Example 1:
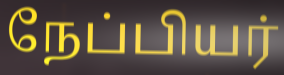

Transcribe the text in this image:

நேப்பியர்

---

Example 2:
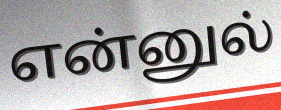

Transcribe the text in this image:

என்னுல்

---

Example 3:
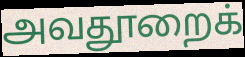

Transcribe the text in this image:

அவதூறைக்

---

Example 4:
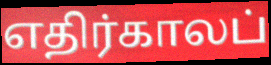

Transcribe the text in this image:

எதிர்காலப்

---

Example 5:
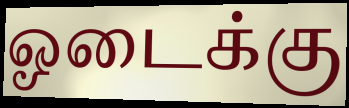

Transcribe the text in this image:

ஓடைக்கு